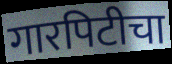
गारपिटीचा